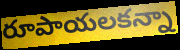
రూపాయలకన్నా